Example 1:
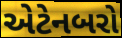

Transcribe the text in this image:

એટેનબરો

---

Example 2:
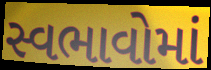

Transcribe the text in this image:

સ્વભાવોમાં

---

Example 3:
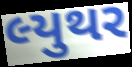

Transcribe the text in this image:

લ્યુથર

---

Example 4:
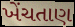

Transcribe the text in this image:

ખેંચતાણ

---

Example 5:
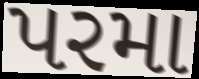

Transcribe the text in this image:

પરમા